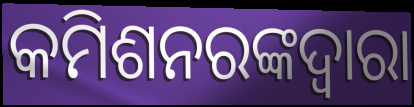
କମିଶନରଙ୍କଦ୍ୱାରା